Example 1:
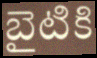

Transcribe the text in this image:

బైటికి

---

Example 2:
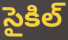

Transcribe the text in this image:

సైకిల్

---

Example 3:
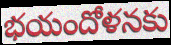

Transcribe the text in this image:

భయందోళనకు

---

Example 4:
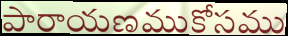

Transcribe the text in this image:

పారాయణముకోసము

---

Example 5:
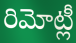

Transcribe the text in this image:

రిమోట్లీ